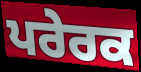
ਪਰੇਰਕ